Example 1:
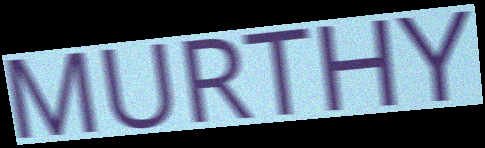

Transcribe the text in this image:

MURTHY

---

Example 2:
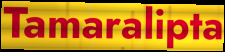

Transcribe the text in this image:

Tamaralipta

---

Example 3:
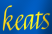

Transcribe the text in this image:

keats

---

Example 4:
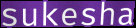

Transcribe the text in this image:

sukesha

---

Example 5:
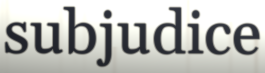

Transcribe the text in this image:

subjudice